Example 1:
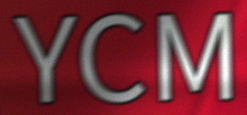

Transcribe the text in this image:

YCM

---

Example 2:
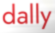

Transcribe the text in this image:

dally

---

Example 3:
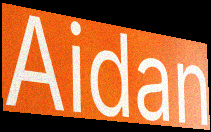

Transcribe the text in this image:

Aidan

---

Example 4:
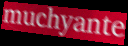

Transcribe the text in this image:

muchyante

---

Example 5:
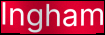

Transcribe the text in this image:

Ingham